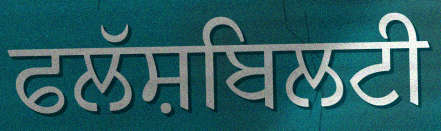
ਫਲੱਸ਼ਬਿਲਟੀ